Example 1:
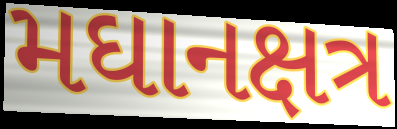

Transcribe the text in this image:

મઘાનક્ષત્ર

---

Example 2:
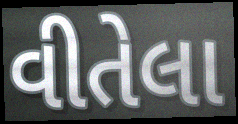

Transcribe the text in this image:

વીતેલા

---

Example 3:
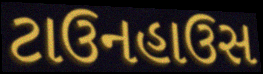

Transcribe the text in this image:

ટાઉનહાઉસ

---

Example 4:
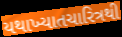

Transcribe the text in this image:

યથાખ્યાતચારિત્રથી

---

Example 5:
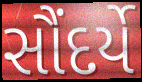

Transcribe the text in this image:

સૌંદર્યે